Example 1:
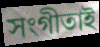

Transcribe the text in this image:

সংগীতাই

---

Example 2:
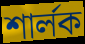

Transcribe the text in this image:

শার্লক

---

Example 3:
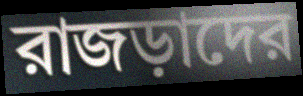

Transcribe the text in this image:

রাজড়াদের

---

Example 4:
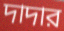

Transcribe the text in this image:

দাদার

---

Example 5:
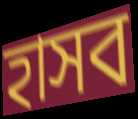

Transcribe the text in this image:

হাসব